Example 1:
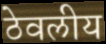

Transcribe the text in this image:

ठेवलीय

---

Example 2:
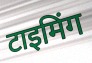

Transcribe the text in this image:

टाइमिंग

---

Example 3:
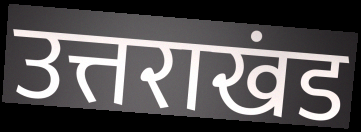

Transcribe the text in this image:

उत्तराखंड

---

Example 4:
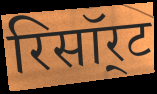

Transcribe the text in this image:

रिसॉर्ट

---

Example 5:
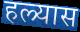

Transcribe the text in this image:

हल्यास